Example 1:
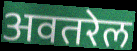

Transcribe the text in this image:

अवतरेल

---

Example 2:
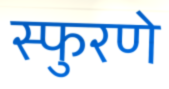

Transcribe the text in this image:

स्फुरणे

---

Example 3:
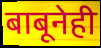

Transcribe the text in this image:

बाबूनेही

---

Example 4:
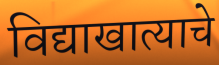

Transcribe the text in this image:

विद्याखात्याचे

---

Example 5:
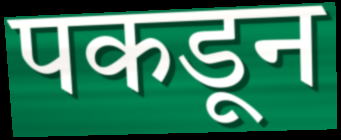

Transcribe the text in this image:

पकडून